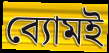
ব্যোমই